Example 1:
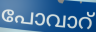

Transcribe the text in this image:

പോവാറ്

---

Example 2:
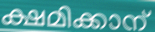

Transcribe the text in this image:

ക്ഷമിക്കാന്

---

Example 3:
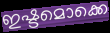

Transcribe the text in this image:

ഇഷ്ടമൊക്കെ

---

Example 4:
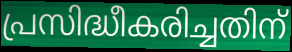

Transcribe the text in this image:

പ്രസിദ്ധീകരിച്ചതിന്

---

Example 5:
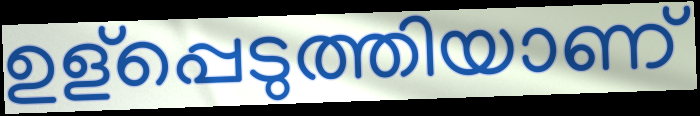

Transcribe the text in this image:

ഉള്പ്പെടുത്തിയാണ്